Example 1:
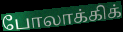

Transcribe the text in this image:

போலாக்கிக்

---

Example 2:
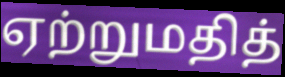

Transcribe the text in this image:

ஏற்றுமதித்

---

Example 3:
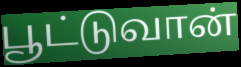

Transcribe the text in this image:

பூட்டுவான்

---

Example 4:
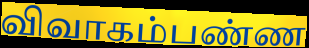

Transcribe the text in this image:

விவாகம்பண்ண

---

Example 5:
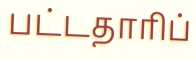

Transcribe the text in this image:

பட்டதாரிப்